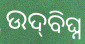
ଉଦ୍‍ବିଘ୍ନ